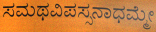
ಸಮಥವಿಪಸ್ಸನಾಧಮ್ಮೇ